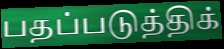
பதப்படுத்திக்